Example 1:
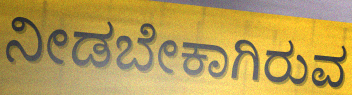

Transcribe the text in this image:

ನೀಡಬೇಕಾಗಿರುವ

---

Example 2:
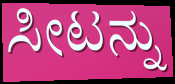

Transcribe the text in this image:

ಸೀಟನ್ನು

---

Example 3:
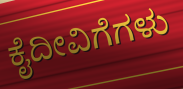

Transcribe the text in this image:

ಕೈದೀವಿಗೆಗಳು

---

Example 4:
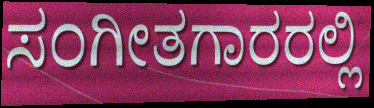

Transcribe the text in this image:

ಸಂಗೀತಗಾರರಲ್ಲಿ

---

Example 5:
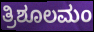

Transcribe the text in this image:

ತ್ರಿಶೂಲಮಂ